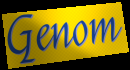
Genom